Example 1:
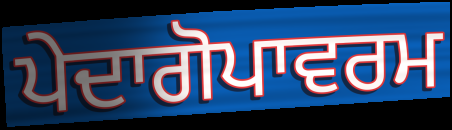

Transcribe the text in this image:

ਪੇਦਾਗੋਪਾਵਰਮ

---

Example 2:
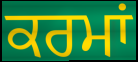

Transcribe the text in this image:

ਕਰਮਾਂ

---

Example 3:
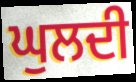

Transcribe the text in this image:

ਘੁਲਦੀ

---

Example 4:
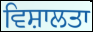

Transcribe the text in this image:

ਵਿਸ਼ਾਲਤਾ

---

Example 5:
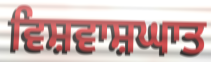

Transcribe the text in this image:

ਵਿਸ਼ਵਾਸ਼ਘਾਤ